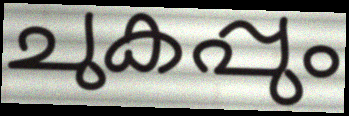
ചുകപ്പും